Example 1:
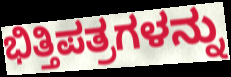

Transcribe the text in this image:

ಭಿತ್ತಿಪತ್ರಗಳನ್ನು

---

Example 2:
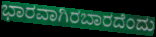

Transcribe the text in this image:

ಭಾರವಾಗಿರಬಾರದೆಂದು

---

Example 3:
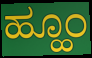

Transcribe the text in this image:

ಹ್ಹೂಂ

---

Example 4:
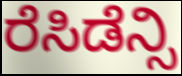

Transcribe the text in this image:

ರೆಸಿಡೆನ್ಸಿ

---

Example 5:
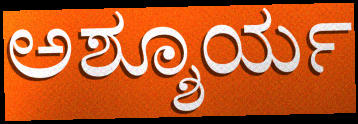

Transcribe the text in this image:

ಅಶ್ಶೂರ್ಯ